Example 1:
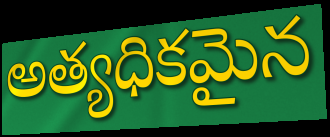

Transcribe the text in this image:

అత్యధికమైన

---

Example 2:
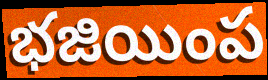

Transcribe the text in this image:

భజియింప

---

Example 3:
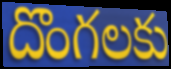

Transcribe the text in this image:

దొంగలకు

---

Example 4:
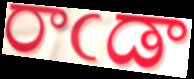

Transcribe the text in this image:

రాఁడా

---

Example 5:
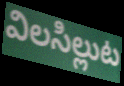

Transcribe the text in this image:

విలసిల్లుట